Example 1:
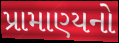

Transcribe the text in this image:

પ્રામાણ્યનો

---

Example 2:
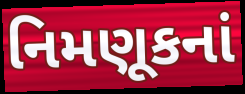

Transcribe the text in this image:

નિમણૂકનાં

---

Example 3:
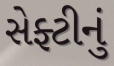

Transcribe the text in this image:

સેફ્ટીનું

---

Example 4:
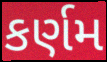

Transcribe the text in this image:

કર્ણમ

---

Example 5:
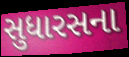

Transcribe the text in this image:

સુધારસના